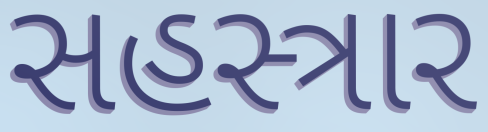
સહસ્ત્રાર